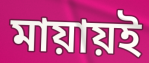
মায়ায়ই